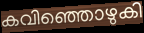
കവിഞ്ഞൊഴുകി